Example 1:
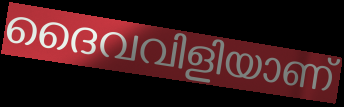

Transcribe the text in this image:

ദൈവവിളിയാണ്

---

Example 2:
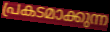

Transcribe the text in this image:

പ്രകടമാക്കുന്ന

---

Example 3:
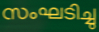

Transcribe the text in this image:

സംഘടിച്ചു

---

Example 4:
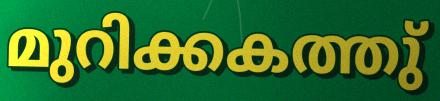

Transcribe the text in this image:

മുറിക്കകത്തു്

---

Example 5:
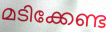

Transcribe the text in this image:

മടിക്കേണ്ട